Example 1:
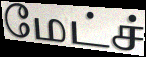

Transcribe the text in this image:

மேட்ச்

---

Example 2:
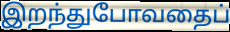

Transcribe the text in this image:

இறந்துபோவதைப்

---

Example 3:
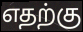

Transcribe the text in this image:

எதற்கு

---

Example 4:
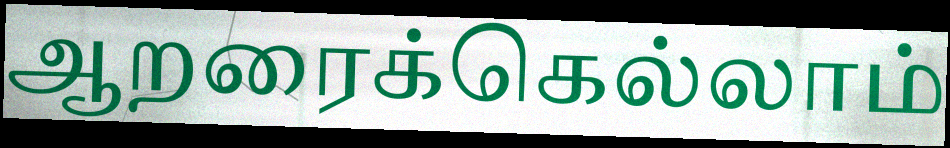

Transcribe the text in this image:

ஆறரைக்கெல்லாம்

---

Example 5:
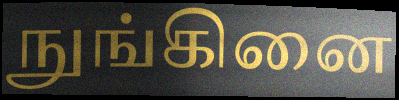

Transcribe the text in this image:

நுங்கினை